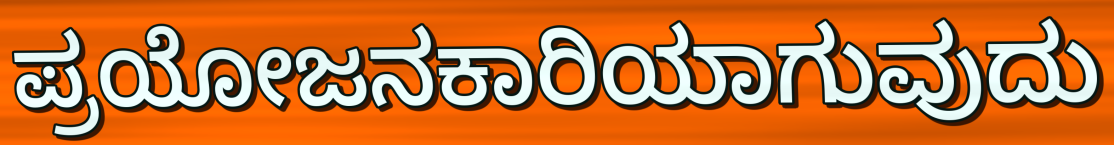
ಪ್ರಯೋಜನಕಾರಿಯಾಗುವುದು